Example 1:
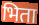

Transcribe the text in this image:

भिता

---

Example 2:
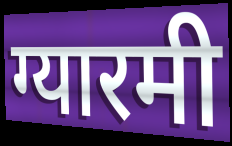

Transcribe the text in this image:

ग्यारमी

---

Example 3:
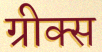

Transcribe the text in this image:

ग्रीक्स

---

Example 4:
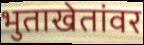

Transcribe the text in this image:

भुताखेतांवर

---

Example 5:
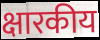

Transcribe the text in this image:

क्षारकीय